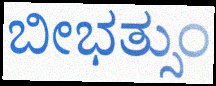
ಬೀಭತ್ಸುಂ